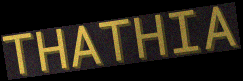
THATHIA